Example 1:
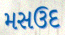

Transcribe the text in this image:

મસઉદ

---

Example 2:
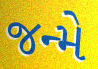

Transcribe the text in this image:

જન્મે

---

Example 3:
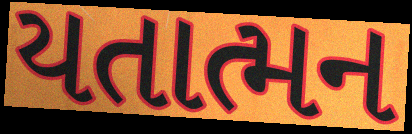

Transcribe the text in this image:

યતાત્મન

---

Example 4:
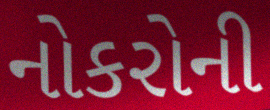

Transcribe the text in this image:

નોકરોની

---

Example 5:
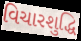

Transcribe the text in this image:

વિચારશુદ્ધિ